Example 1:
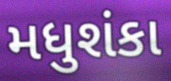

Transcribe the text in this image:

મધુશંકા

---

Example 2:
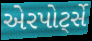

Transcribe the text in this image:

એરપોર્ટ્સે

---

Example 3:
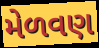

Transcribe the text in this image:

મેળવણ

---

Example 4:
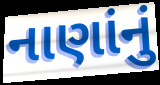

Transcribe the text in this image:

નાણાંનું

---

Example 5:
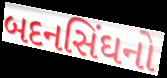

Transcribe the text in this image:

બદનસિંઘનો